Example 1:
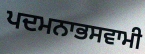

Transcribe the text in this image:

ਪਦਮਨਾਭਸਵਾਮੀ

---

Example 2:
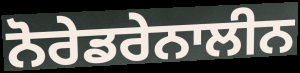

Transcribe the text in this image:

ਨੋਰੇਡਰੇਨਾਲੀਨ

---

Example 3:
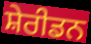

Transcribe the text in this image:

ਸ਼ੇਰੀਡਨ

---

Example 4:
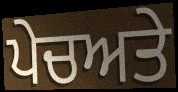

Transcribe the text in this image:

ਪੇਚਅਤੇ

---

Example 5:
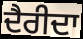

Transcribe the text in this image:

ਦੈਰੀਦਾ